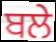
ਬਲੇ